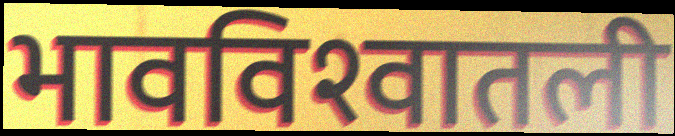
भावविश्वातली